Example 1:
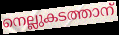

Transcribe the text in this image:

നെല്ലുകടത്താന്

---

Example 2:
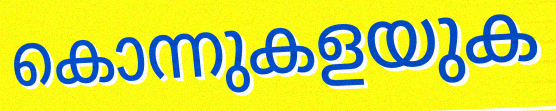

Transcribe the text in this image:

കൊന്നുകളയുക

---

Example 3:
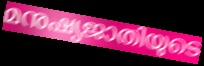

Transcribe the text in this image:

മനുഷ്യജാതിയുടെ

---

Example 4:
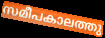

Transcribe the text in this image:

സമീപകാലത്തു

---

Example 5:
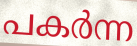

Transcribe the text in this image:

പകർന്ന